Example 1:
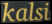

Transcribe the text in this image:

kalsi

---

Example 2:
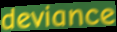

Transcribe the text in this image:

deviance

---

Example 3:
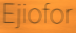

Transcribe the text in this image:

Ejiofor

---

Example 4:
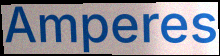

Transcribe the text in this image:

Amperes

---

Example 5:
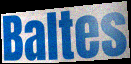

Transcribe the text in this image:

Baltes